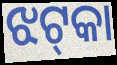
ଝଟ୍‍କା